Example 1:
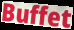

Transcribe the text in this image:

Buffet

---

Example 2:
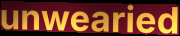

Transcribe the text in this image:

unwearied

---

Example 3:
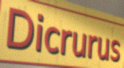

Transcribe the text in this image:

Dicrurus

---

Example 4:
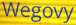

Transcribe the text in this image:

Wegovy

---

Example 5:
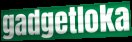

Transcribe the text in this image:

gadgetloka